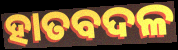
ହାତବଦଳ